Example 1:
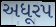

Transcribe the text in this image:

અધૂરપ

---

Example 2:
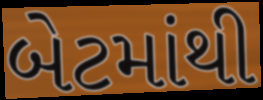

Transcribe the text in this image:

બેટમાંથી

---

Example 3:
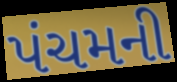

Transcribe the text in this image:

પંચમની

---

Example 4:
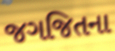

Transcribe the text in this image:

જગજિતના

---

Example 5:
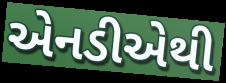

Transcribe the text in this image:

એનડીએથી